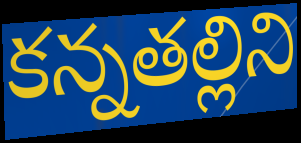
కన్నతల్లిని